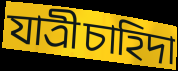
যাত্রীচাহিদা